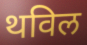
थविल